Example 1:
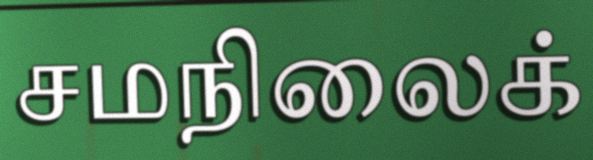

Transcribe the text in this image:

சமநிலைக்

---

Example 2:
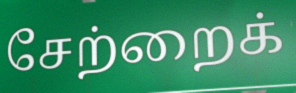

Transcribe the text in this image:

சேற்றைக்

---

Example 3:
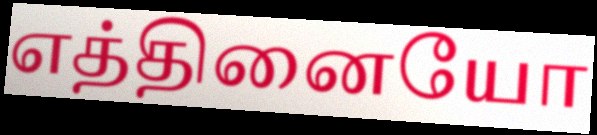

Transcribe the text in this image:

எத்தினையோ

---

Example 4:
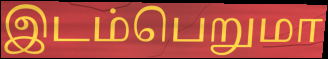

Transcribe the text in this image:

இடம்பெறுமா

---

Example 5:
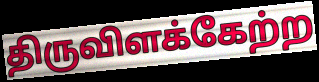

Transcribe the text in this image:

திருவிளக்கேற்ற